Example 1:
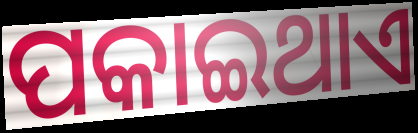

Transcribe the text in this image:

ପକାଇଥାଏ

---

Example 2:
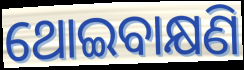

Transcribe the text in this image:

ଥୋଇବାକ୍ଷଣି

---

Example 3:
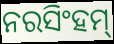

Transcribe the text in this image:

ନରସିଂହମ୍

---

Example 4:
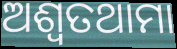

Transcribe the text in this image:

ଅଶ୍ୱତଥାମା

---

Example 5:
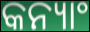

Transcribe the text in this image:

କନ୍ୟାଂ